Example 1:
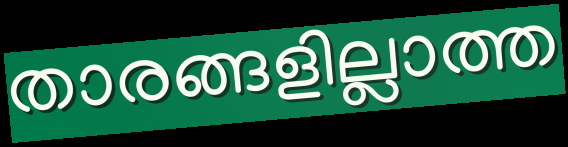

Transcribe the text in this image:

താരങ്ങളില്ലാത്ത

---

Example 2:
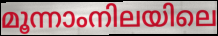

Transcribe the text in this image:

മൂന്നാംനിലയിലെ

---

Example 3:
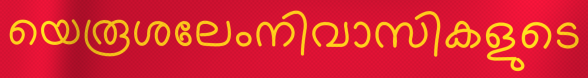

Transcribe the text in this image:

യെരൂശലേംനിവാസികളുടെ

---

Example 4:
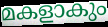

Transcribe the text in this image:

മകളാകും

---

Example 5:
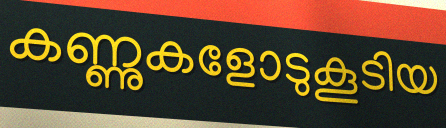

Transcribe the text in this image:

കണ്ണുകളോടുകൂടിയ